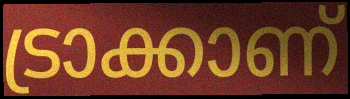
ട്രാക്കാണ്